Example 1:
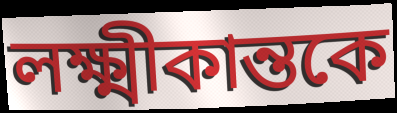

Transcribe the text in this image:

লক্ষ্মীকান্তকে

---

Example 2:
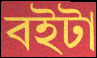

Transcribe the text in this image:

বইটা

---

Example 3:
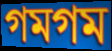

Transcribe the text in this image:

গমগম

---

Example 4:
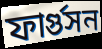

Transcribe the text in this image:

ফার্গুসন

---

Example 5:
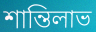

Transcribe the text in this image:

শান্তিলাভ